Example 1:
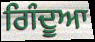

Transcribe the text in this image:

ਗਿੰਦੂਆ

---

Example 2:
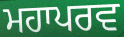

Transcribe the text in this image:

ਮਹਾਪਰਵ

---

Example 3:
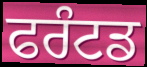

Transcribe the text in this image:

ਫਰੰਟਡ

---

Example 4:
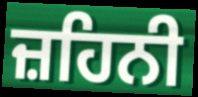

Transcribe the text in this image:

ਜ਼ਹਿਨੀ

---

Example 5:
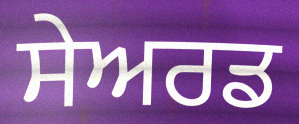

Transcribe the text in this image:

ਸੇਅਰਡ